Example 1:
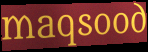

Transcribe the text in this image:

maqsood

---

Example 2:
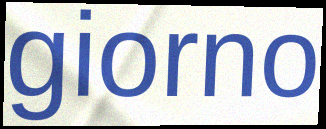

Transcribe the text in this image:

giorno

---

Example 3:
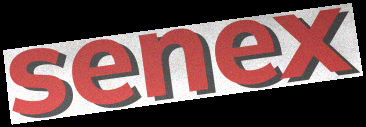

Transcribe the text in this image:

senex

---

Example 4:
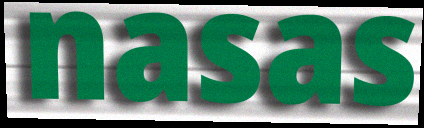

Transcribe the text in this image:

nasas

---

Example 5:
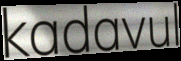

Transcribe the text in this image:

kadavul